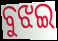
ବୁଝଇ